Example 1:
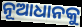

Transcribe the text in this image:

ନୂଆଧାନକୁ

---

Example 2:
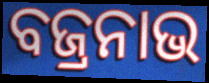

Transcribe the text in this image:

ବଜ୍ରନାଭ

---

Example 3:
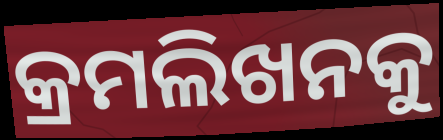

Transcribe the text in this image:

କ୍ରମଲିଖନକୁ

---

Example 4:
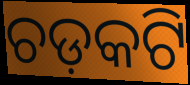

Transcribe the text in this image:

ଚଡ଼କଟି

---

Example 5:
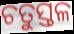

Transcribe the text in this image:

ଚତୁସ୍ତଳ